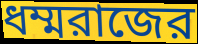
ধম্মরাজের